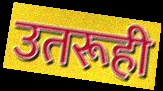
उतरूही